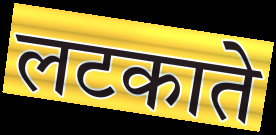
लटकाते